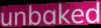
unbaked